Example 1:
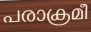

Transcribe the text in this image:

പരാക്രമീ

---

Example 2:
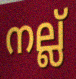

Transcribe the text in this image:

നല്ല്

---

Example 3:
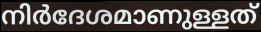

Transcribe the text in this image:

നിർദേശമാണുള്ളത്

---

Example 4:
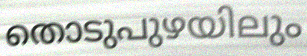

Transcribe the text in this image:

തൊടുപുഴയിലും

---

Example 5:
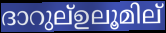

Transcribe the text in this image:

ദാറുല്ഉലൂമില്